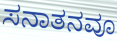
ಸನಾತನವೂ